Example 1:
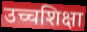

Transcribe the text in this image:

उच्‍चशिक्षा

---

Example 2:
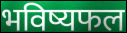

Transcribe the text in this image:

भविष्‍यफल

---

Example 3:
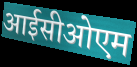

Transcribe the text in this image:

आईसीओएम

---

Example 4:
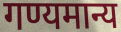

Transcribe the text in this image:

गण्यमान्य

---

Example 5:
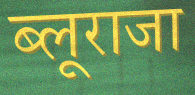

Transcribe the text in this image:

ब्लूराजा